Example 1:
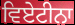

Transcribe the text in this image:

ਵਿਏਟੀਨਾ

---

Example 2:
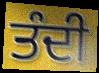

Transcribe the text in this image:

ਤੰਦੀ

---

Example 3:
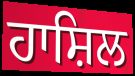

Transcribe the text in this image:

ਹਾਸ਼ਿਲ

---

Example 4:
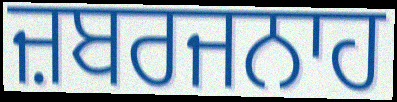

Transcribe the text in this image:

ਜ਼ਬਰਜਨਾਹ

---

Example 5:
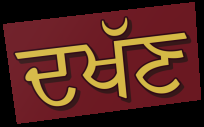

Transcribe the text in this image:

ਦਖੱਣ